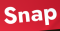
Snap